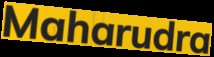
Maharudra